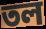
তল